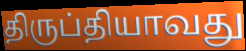
திருப்தியாவது